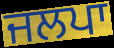
ਜਲਪਾ